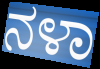
ನಳಾ